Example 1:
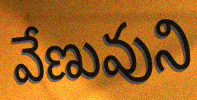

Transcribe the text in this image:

వేణువుని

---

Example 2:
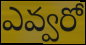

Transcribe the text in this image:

ఎవ్వరో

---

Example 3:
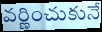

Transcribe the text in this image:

వర్ణించుకునే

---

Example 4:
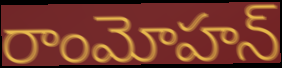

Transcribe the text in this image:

రాంమోహన్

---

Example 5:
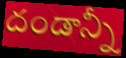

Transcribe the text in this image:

దండాన్నీ